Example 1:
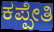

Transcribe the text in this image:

ಕಪ್ಪೇತಿ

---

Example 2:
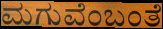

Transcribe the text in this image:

ಮಗುವೆಂಬಂತೆ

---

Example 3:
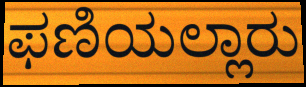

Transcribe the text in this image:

ಫಣಿಯಲ್ಲಾರು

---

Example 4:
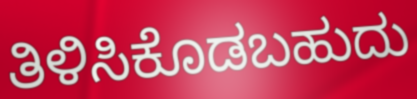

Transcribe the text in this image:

ತಿಳಿಸಿಕೊಡಬಹುದು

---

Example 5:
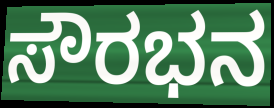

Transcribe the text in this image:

ಸೌರಭನ